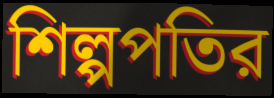
শিল্পপতির